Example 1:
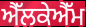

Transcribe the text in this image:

ਐੱਲਕੇਐੱਮ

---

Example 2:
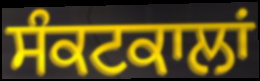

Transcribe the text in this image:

ਸੰਕਟਕਾਲਾਂ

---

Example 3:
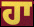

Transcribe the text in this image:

ਹਾ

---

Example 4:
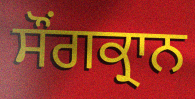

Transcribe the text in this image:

ਸੌਂਗਕ੍ਰਾਨ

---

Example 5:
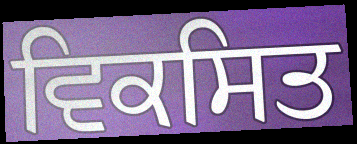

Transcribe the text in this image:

ਵਿਕਸਿਤ